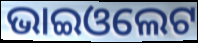
ଭାଇଓଲେଟ